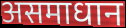
असमाधान